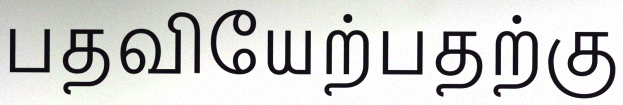
பதவியேற்பதற்கு